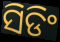
ସିଡିଂ